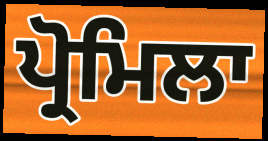
ਪ੍ਰੋਮਿਲਾ